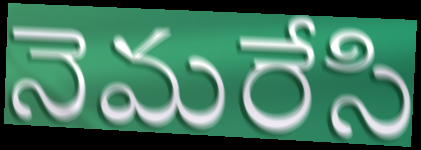
నెమరేసి